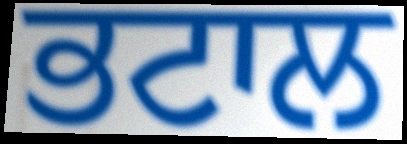
ਭਟਾਲ